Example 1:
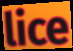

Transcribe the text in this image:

lice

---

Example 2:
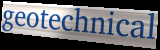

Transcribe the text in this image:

geotechnical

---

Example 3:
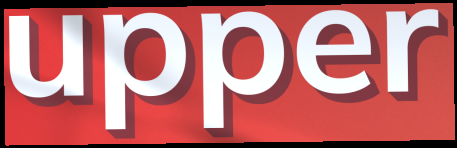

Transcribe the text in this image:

upper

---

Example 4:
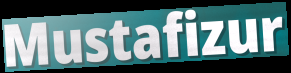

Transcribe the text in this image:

Mustafizur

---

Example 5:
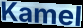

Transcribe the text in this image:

Kamel